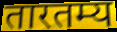
तारतम्य